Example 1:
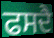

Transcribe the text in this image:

ਫਸਦੈ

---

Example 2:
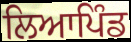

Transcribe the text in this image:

ਲਿਆਪਿੰਡ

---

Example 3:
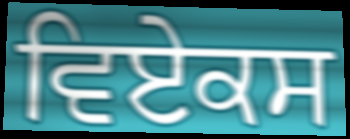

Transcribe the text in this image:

ਵਿਏਕਸ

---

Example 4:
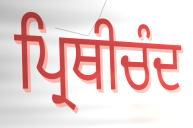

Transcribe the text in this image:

ਪ੍ਰਿਥੀਚੰਦ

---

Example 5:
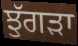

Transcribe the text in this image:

ਝੁੱਗੜਾ